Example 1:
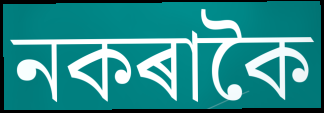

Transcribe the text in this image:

নকৰাকৈ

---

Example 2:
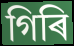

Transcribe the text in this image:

গিৰি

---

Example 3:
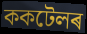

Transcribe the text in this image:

ককটেলৰ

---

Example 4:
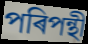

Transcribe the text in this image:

পৰিপন্থী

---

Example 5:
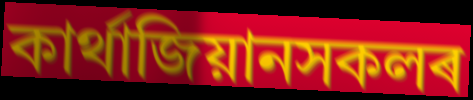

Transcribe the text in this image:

কাৰ্থাজিয়ানসকলৰ